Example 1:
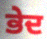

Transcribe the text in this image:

ਭੇਦ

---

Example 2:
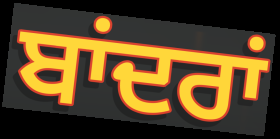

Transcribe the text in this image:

ਬਾਂਦਰਾਂ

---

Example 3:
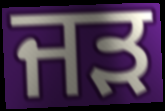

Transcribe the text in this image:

ਜੜ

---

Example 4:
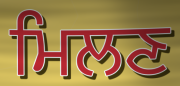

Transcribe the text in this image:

ਮਿਲਣ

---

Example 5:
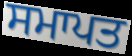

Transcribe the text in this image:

ਸਮਾਪਤ